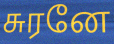
சுரனே